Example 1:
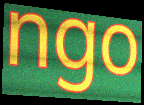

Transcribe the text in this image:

ngo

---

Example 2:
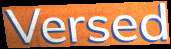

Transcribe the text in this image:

Versed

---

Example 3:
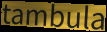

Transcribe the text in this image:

tambula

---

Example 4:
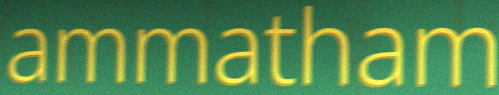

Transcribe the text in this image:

ammatham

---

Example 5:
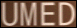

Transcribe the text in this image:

UMED